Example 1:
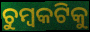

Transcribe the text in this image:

ଚୁମ୍ବକଟିକୁ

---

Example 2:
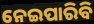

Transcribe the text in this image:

ନେଇପାରିବି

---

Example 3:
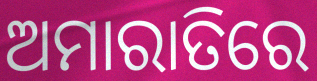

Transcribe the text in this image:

ଅମାରାତିରେ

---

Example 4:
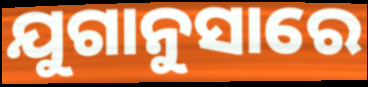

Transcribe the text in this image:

ଯୁଗାନୁସାରେ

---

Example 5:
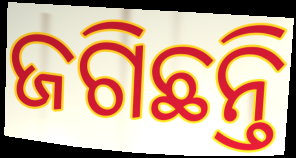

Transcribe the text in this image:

ଜଗିଛନ୍ତି